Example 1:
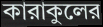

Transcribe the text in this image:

কারাকুলের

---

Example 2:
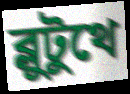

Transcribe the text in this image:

ব্লুটুথে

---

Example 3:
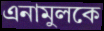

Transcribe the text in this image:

এনামুলকে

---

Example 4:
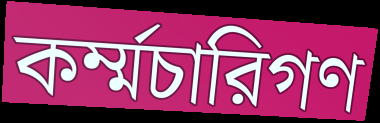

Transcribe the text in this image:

কর্ম্মচারিগণ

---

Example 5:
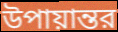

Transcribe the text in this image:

উপায়ান্তর